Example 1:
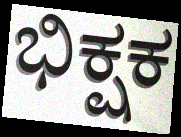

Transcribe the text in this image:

ಭಿಕ್ಷಕ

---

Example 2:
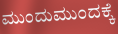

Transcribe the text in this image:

ಮುಂದುಮುಂದಕ್ಕೆ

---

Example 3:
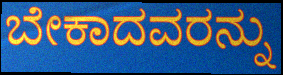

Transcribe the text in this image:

ಬೇಕಾದವರನ್ನು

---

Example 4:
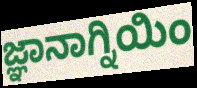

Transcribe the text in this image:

ಜ್ಞಾನಾಗ್ನಿಯಿಂ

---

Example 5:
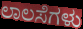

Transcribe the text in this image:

ಲಾಲಸೆಗಳು